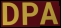
DPA